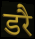
डरै